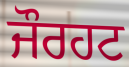
ਜੌਰਹਟ